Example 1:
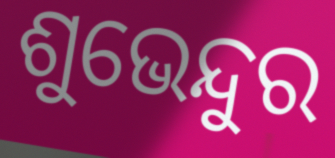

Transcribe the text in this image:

ଶୁଭେନ୍ଦୁର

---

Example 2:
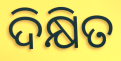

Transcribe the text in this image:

ଦିକ୍ଷିତ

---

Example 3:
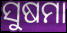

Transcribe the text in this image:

ସୁଷମା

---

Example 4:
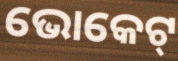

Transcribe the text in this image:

ଭୋକେଟ୍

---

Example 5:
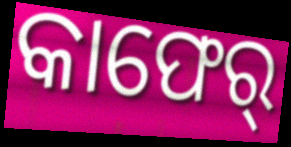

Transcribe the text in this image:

କାଫେର୍